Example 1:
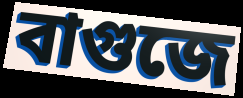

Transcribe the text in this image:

বাগুজে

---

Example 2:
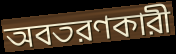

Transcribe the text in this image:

অবতরণকারী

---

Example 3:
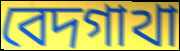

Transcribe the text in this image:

বেদগাথা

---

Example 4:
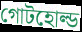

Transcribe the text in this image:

গোটহোল্ড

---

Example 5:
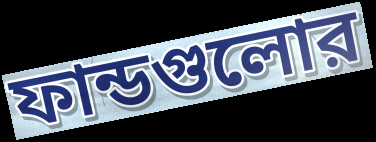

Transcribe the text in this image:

ফান্ডগুলোর